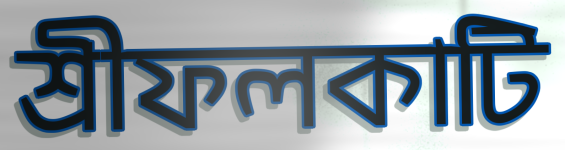
শ্রীফলকাটি